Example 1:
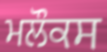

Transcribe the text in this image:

ਮਲੌਕਸ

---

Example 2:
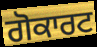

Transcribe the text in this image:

ਗੋਕਾਰਟ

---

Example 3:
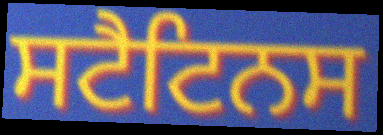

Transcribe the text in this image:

ਸਟੈਟਿਨਸ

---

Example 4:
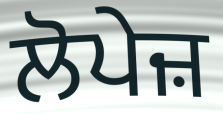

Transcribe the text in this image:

ਲੋਪੇਜ਼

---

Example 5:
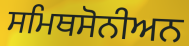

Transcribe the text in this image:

ਸਮਿਥਸੋਨੀਅਨ